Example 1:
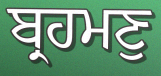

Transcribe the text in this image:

ਬ੍ਰਹਮਣੁ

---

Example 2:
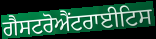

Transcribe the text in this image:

ਗੈਸਟਰੋਐਂਟਰਾਈਟਿਸ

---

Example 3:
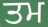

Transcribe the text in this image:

ਤਮ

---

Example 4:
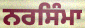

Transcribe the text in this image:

ਨਰਸਿੰਮਾ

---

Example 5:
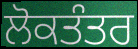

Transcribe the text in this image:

ਲੋਕਤੰਤਰ